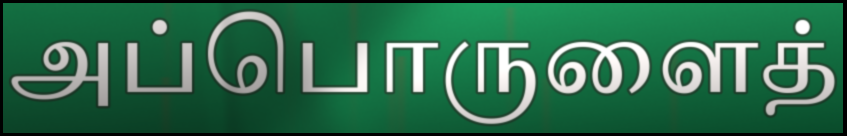
அப்பொருளைத்